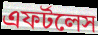
এফর্টলেস